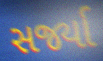
સર્જ્યા